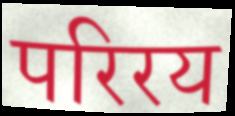
परिरय